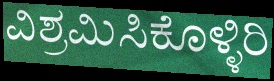
ವಿಶ್ರಮಿಸಿಕೊಳ್ಳಿರಿ